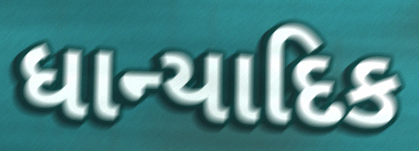
ધાન્યાદિક